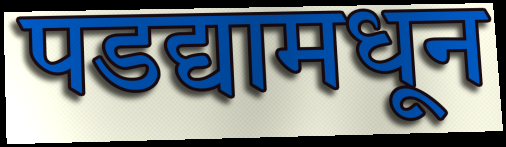
पडद्यामधून